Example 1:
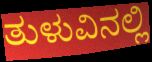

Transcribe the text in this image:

ತುಳುವಿನಲ್ಲಿ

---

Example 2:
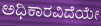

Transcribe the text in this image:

ಅಧಿಕಾರವಿದೆಯೇ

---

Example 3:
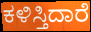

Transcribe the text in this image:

ಕಳಿಸ್ತಿದಾರೆ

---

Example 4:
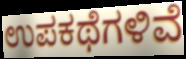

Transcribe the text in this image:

ಉಪಕಥೆಗಳಿವೆ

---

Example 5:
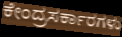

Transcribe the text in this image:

ಕೇಂದ್ರಸರ್ಕಾರಗಳು